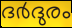
ദർദുരം